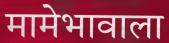
मामेभावाला